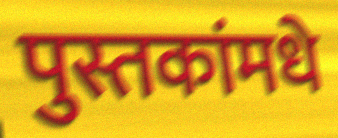
पुस्तकांमधे